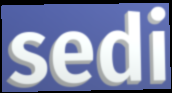
sedi